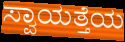
ಸ್ವಾಯತ್ತೆಯ